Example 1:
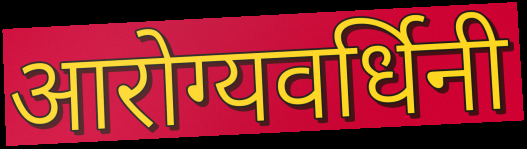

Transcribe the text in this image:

आरोग्यवर्धिनी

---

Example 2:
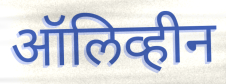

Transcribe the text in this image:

ऑलिव्हीन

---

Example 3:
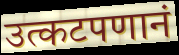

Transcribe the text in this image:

उत्कटपणानं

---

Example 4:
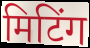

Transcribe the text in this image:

मिटिंग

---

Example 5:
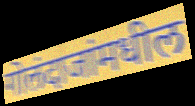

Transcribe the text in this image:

गोलंदाजांमधील